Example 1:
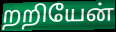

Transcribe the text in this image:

றறியேன்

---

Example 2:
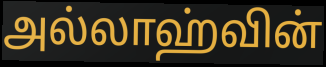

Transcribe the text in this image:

அல்லாஹ்வின்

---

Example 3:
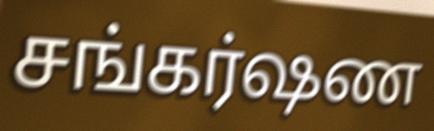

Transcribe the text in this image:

சங்கர்ஷண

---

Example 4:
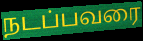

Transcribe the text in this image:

நடப்பவரை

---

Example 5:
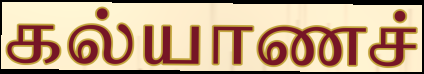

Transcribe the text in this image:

கல்யாணச்